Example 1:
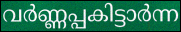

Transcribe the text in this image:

വർണ്ണപ്പകിട്ടാർന്ന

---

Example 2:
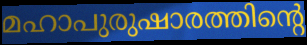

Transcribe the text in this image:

മഹാപുരുഷാരത്തിന്റെ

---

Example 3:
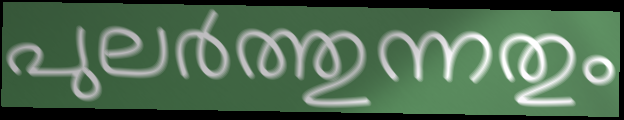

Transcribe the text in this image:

പുലർത്തുന്നതും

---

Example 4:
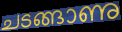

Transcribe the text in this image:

ചടങ്ങാണു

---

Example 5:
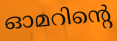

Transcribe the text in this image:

ഓമറിന്റെ